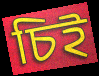
চিই